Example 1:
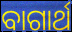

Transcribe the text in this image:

ବାଗାର୍ଥ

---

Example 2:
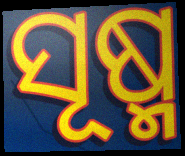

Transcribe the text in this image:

ସୂଷ୍ମ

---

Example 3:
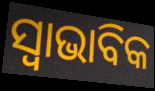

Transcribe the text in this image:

ସ୍ୱାଭାବିକ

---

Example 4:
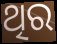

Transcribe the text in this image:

ଥିର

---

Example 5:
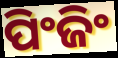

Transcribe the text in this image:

ପିଂଜିଂ